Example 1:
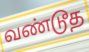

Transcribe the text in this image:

வண்டூத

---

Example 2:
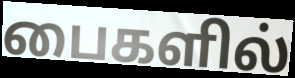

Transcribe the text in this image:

பைகளில்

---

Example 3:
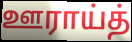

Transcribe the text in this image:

ஊராய்த்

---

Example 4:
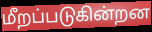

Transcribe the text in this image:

மீறப்படுகின்றன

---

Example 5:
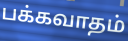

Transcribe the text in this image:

பக்கவாதம்